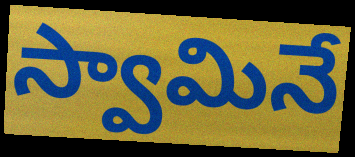
స్వామినే